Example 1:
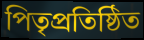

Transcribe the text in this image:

পিতৃপ্রতিষ্ঠিত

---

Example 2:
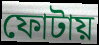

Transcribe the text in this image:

ফোটায়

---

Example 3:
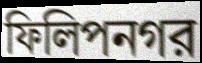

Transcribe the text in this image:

ফিলিপনগর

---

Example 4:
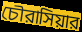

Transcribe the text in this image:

চৌরাসিয়ার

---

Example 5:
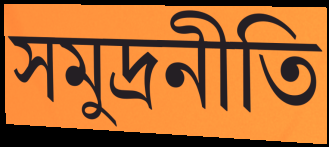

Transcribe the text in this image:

সমুদ্রনীতি